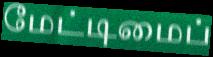
மேட்டிமைப்